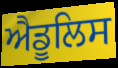
ਐਡੂਲਿਸ